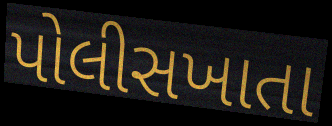
પોલીસખાતા